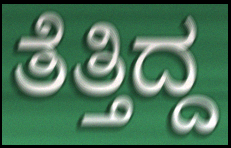
ತೆತ್ತಿದ್ದ